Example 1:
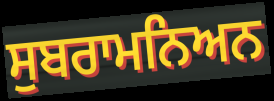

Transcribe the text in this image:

ਸੁਬਰਾਮਨਿਅਨ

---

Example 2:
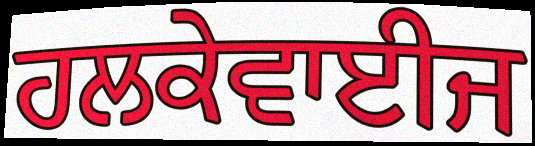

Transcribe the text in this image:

ਹਲਕੇਵਾਈਜ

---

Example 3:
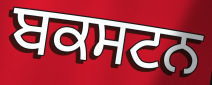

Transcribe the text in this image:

ਬਕਸਟਨ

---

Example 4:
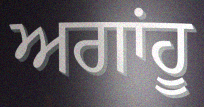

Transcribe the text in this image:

ਅਗਾਂਹੂ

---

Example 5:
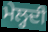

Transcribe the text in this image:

ਮੇਲ੍ਹਦੀ